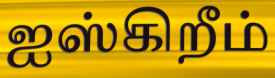
ஐஸ்கிறீம்